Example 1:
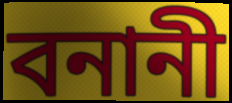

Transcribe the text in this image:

বনানী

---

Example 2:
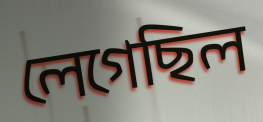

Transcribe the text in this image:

লেগেছিল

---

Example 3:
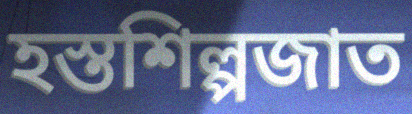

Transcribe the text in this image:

হস্তশিল্পজাত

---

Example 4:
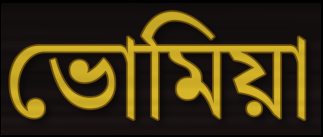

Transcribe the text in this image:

ভোমিয়া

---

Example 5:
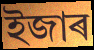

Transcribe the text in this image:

ইজাৰ